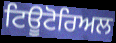
ਟਿਊਟੋਰਿਅਲ